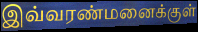
இவ்வரண்மனைக்குள்